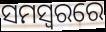
ସମସ୍ବରରେ